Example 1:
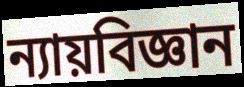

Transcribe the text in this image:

ন্যায়বিজ্ঞান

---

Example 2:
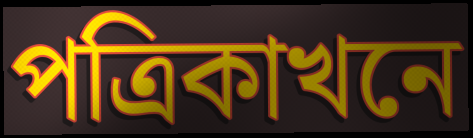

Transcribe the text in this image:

পত্ৰিকাখনে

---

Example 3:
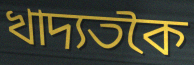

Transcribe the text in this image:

খাদ্যতকৈ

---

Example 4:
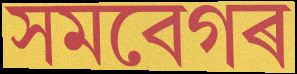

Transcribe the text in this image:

সমবেগৰ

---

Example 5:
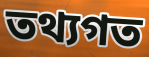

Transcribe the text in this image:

তথ্যগত